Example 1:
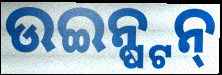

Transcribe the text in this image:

ଉଇନ୍ଷ୍ଟନ୍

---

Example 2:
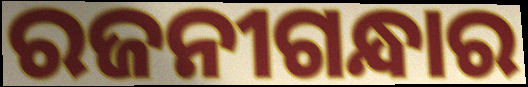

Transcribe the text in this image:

ରଜନୀଗନ୍ଧାର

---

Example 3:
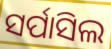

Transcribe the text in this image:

ସର୍ପାସିଲ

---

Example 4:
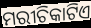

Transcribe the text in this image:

ମରୀଚିକାଟିଏ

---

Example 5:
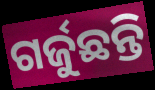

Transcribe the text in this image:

ଗର୍ଜୁଛନ୍ତି